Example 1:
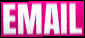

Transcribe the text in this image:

EMAIL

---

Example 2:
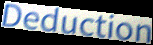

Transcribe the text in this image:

Deduction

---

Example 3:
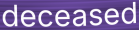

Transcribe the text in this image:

deceased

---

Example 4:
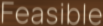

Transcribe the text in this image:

Feasible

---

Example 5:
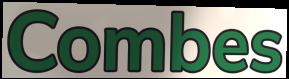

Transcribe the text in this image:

Combes